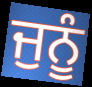
ਜੁਨੂੰ